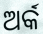
ଅର୍କ